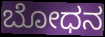
ಬೋಧನ